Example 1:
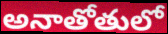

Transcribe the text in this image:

అనాతోతులో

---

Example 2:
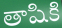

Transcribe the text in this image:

తాషికి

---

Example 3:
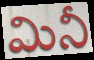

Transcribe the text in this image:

మినీ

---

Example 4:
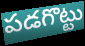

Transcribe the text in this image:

పడగొట్టు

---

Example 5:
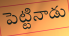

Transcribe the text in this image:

పెట్టినాడు